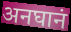
अनघानं